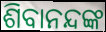
ଶିବାନନ୍ଦଙ୍କ